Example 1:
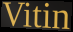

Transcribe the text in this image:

Vitin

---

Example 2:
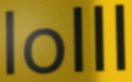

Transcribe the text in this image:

lolll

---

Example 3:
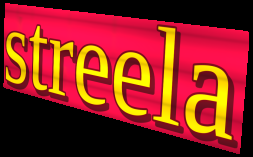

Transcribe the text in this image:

streela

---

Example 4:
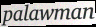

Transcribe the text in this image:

palawman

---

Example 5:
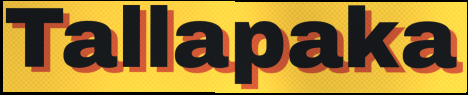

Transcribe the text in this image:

Tallapaka